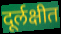
दूर्लक्षीत